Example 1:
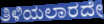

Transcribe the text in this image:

ತಿಳಿಯಲಾರದೇ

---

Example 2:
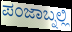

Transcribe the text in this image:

ಪಂಜಾಬ್ನಲ್ಲಿ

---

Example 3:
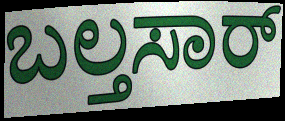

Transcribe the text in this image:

ಬಲ್ತಸಾರ್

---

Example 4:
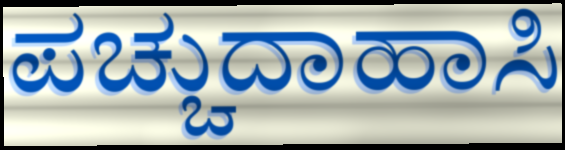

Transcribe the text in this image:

ಪಚ್ಚುದಾಹಾಸಿ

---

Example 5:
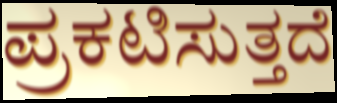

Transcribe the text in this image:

ಪ್ರಕಟಿಸುತ್ತದೆ